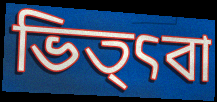
ভিত্ৎবা